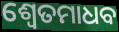
ଶ୍ୱେତମାଧବ